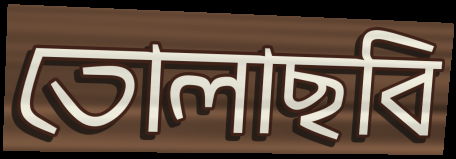
তোলাছবি